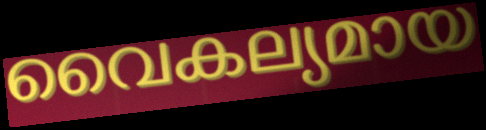
വൈകല്യമായ